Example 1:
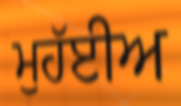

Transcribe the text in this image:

ਮੁਹੱਈਅ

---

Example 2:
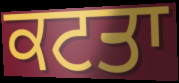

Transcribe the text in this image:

ਕਟਤਾ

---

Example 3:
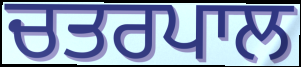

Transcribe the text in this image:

ਚਤਰਪਾਲ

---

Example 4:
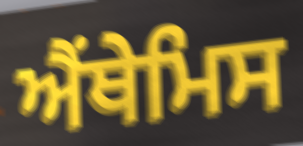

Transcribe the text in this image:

ਐਂਥੇਮਿਸ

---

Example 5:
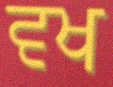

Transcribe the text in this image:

ਵਖ